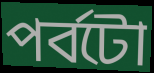
পৰ্বটো